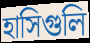
হাসিগুলি